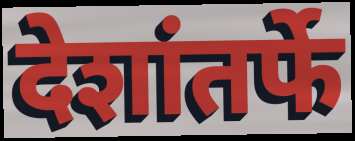
देशांतर्फे